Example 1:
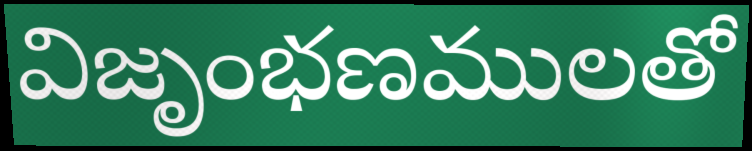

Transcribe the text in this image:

విజృంభణములతో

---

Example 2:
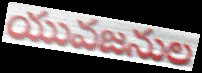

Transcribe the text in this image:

యువజనుల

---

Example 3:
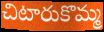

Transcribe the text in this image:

చిటారుకొమ్మ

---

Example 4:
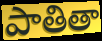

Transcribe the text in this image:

పాతితా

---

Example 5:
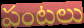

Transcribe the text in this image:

పంటలు